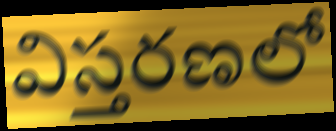
విస్తరణలో